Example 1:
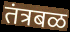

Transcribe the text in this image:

तंत्रबळ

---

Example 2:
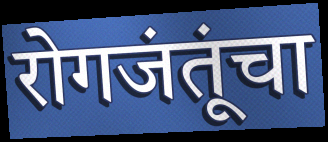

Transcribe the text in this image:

रोगजंतूंचा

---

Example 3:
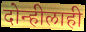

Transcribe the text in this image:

दोन्हीलाही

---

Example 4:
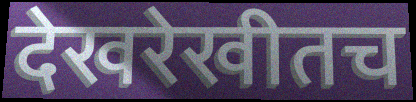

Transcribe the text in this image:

देखरेखीतच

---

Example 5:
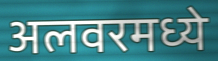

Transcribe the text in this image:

अलवरमध्ये